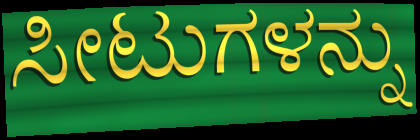
ಸೀಟುಗಳನ್ನು